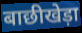
बाछीखेड़ा